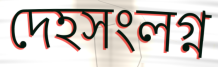
দেহসংলগ্ন